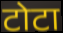
टोटा